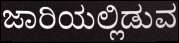
ಜಾರಿಯಲ್ಲಿಡುವ